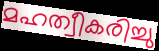
മഹത്വീകരിച്ചു